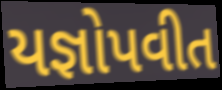
યજ્ઞોપવીત